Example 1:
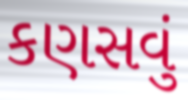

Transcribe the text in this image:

કણસવું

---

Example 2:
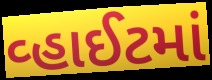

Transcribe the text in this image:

વ્હાઈટમાં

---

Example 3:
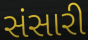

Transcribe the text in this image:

સંસારી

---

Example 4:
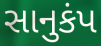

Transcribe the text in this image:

સાનુકંપ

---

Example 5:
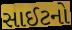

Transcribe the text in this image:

સાઈટનો